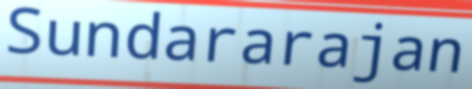
Sundararajan